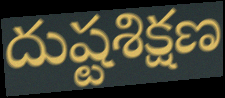
దుష్టశిక్షణ